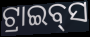
ଟ୍ରାଇବ୍‌ସ